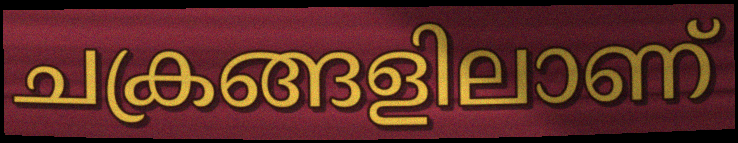
ചക്രങ്ങളിലാണ്